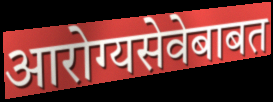
आरोग्यसेवेबाबत